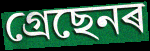
গ্ৰেছেনৰ